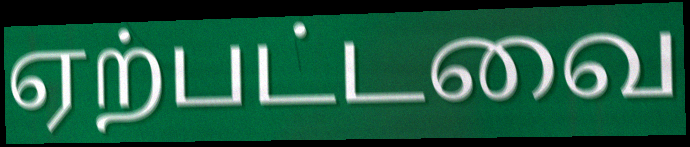
ஏற்பட்டவை